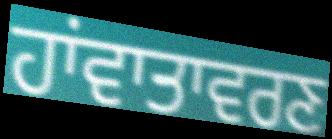
ਹਾਂਵਾਤਾਵਰਣ